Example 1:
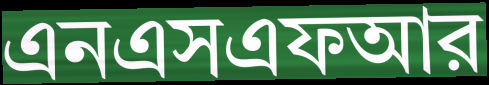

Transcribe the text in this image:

এনএসএফআর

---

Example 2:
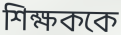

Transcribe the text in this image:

শিক্ষককে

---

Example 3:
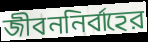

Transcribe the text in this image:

জীবননির্বাহের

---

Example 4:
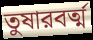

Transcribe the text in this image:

তুষারবর্ত্ম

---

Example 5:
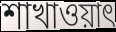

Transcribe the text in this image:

শাখাওয়াৎ